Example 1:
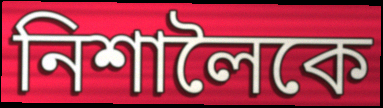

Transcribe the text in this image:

নিশালৈকে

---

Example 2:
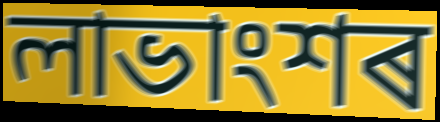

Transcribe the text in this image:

লাভাংশৰ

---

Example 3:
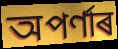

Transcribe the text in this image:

অপৰ্ণাৰ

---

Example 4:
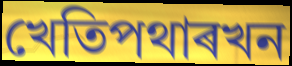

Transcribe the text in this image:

খেতিপথাৰখন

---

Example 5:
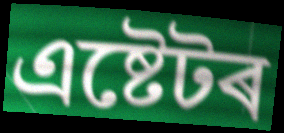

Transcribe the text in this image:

এষ্টেটৰ